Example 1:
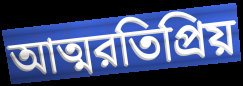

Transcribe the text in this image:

আত্মরতিপ্রিয়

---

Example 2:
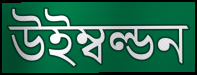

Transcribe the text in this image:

উইম্বল্ডন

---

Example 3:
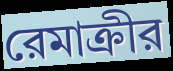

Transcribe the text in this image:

রেমাক্রীর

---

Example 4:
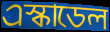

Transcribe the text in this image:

এস্কাডেল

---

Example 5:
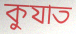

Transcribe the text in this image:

কুযাত